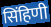
सिंहिणी